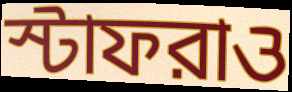
স্টাফরাও